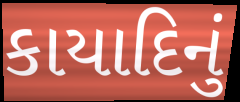
કાયાદિનું